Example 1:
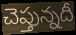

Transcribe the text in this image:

చెప్తున్నదీ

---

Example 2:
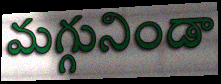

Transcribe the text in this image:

మగ్గునిండా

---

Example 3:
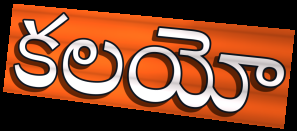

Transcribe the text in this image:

కలయో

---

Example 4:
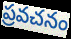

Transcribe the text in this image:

ప్రవచనం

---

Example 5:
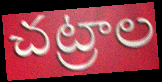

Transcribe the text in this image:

చట్రాల